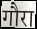
गौरा